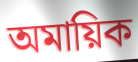
অমায়িক